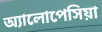
অ্যালোপেসিয়া